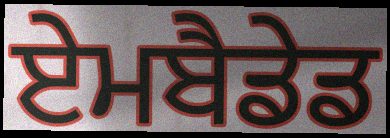
ਏਮਬੈਡੇਡ